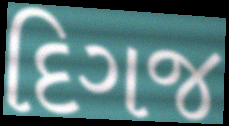
દિગજ